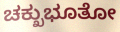
ಚಕ್ಖುಭೂತೋ